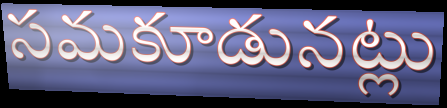
సమకూడునట్లు